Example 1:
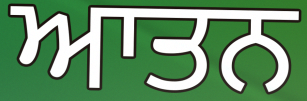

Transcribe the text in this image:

ਆਤਨ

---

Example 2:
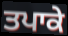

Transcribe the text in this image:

ਤਪਾਕੇ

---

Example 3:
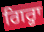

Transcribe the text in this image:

ਗਿਰ੍ਹਾ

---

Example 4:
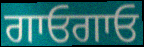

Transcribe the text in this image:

ਗਾਓਗਾਓ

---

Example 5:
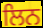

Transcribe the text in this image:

ਲਿਨ